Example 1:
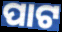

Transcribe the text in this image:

ପାଟ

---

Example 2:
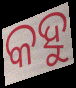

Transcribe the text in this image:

କହୁ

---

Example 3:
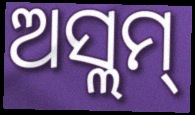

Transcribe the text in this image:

ଅସ୍ଲମ୍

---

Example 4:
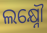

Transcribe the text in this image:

ଲକ୍ଷ୍ନୌ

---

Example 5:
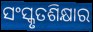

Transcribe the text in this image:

ସଂସ୍କୃତଶିକ୍ଷାର